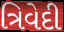
ત્રિવેદી